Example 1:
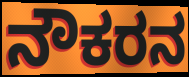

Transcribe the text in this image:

ನೌಕರನ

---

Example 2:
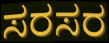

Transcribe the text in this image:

ಸರಸರ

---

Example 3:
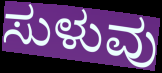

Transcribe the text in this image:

ಸುಳುವು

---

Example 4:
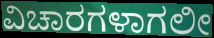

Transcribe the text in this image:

ವಿಚಾರಗಳಾಗಲೀ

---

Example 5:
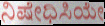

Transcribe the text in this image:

ನಿಷೇಧಿಸಿಯೇ